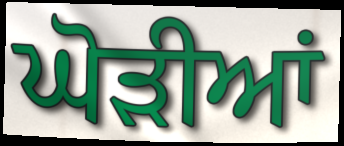
ਘੋੜੀਆਂ